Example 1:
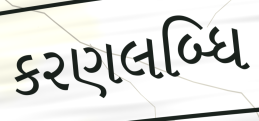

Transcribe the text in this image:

કરણલબ્ધિ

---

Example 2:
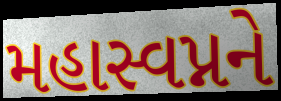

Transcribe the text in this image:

મહાસ્વપ્નને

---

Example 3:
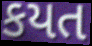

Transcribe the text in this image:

કયત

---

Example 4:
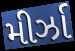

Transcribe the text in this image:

મીર્ઝા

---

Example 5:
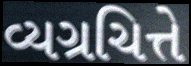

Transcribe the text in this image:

વ્યગ્રચિત્તે